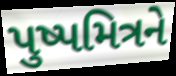
પુષ્પમિત્રને